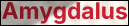
Amygdalus